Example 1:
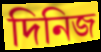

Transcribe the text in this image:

দিনিজ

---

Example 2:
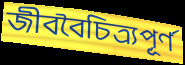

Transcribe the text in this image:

জীববৈচিত্র্যপূর্ণ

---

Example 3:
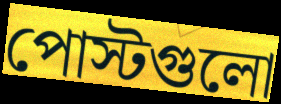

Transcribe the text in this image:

পোস্টগুলো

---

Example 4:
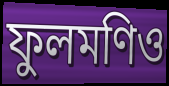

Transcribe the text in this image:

ফুলমণিও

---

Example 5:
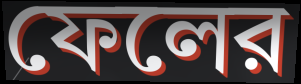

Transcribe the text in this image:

ফেলের